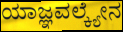
ಯಾಜ್ಞವಲ್ಕ್ಯೇನ